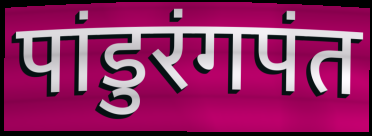
पांडुरंगपंत